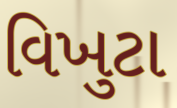
વિખુટા